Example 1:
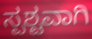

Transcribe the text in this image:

ಸ್ಪಶ್ಟವಾಗಿ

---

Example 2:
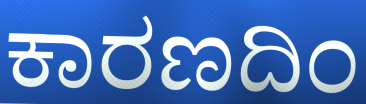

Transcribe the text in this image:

ಕಾರಣದಿಂ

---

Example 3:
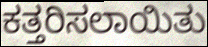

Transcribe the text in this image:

ಕತ್ತರಿಸಲಾಯಿತು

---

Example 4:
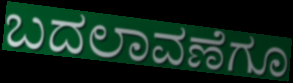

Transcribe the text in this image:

ಬದಲಾವಣೆಗೂ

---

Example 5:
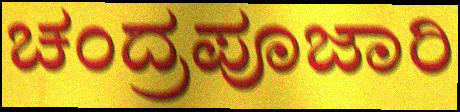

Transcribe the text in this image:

ಚಂದ್ರಪೂಜಾರಿ